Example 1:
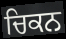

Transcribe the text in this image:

ਚਿਕਨ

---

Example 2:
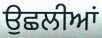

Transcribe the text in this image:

ਉਛਲੀਆਂ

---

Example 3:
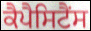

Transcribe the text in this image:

ਕੈਪੈਸਿਟੈਂਸ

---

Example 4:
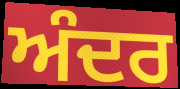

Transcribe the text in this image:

ਅੰਦਰ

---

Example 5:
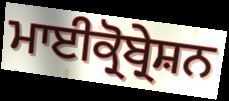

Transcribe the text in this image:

ਮਾਈਕ੍ਰੋਬ੍ਰੇਸ਼ਨ